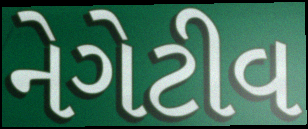
નેગેટીવ